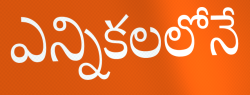
ఎన్నికలలోనే